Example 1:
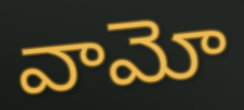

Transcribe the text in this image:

వామో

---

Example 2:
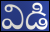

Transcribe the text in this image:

విడి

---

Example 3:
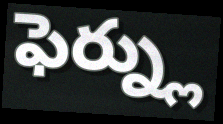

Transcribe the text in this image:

ఫెర్న్లు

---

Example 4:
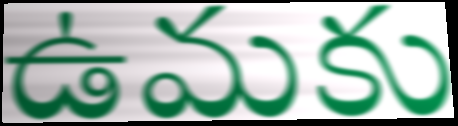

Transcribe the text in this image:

ఉమకు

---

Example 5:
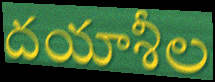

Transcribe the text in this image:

దయాశీల